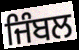
ਜਿੰਬਲ